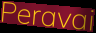
Peravai